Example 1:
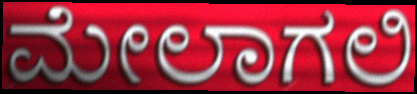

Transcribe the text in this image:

ಮೇಲಾಗಲಿ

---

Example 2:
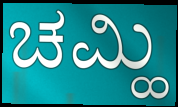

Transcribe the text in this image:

ಚಮ್ಹಿ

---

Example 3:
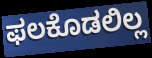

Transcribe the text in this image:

ಫಲಕೊಡಲಿಲ್ಲ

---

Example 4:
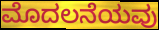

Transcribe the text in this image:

ಮೊದಲನೆಯವು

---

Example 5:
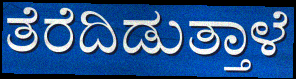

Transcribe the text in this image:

ತೆರೆದಿಡುತ್ತಾಳೆ